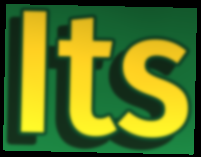
Its